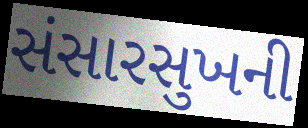
સંસારસુખની